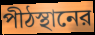
পীঠস্থানের